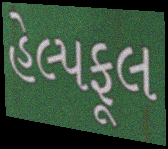
હેલ્પફૂલ